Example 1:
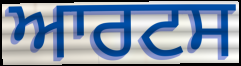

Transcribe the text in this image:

ਆਰਟਸ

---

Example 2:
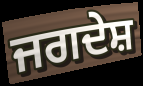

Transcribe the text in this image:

ਜਗਦੇਸ਼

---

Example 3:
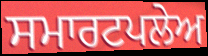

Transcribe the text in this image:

ਸਮਾਰਟਪਲੇਅ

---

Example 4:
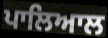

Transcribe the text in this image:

ਪਾਲਿਆਲ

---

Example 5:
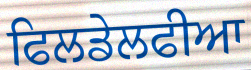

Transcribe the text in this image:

ਫਿਲਡੇਲਫੀਆ